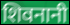
शिवनानी